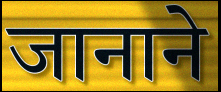
जानाने